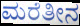
ಮರೆತೀನ